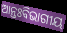
ଆନ୍ତଃବିଭାଗୀୟ